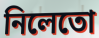
নিলেতো